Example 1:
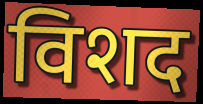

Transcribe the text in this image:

विशद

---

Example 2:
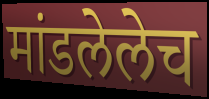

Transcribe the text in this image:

मांडलेलेच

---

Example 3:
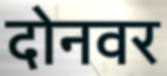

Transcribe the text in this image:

दोनवर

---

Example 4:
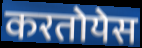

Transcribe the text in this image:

करतोयेस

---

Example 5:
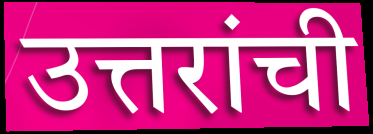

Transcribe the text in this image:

उत्तरांची